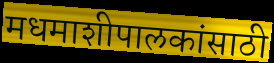
मधमाशीपालकांसाठी